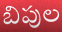
బిపుల